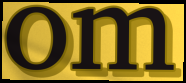
om